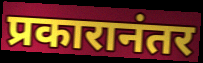
प्रकारानंतर